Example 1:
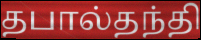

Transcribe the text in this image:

தபால்தந்தி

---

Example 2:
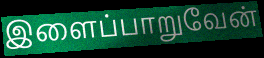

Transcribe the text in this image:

இளைப்பாறுவேன்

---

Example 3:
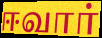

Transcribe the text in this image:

ஈவார்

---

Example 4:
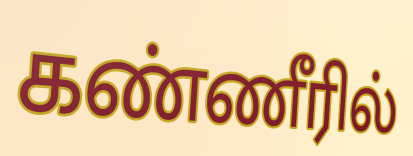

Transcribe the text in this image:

கண்ணீரில்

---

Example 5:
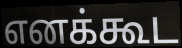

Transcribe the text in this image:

எனக்கூட